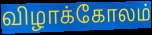
விழாக்கோலம்